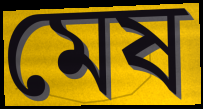
মেষ